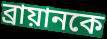
ব্রায়ানকে